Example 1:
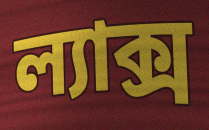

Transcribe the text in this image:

ল্যাক্স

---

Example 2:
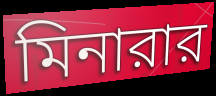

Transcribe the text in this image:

মিনারার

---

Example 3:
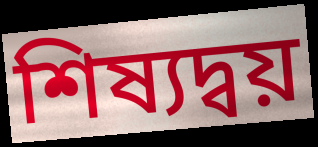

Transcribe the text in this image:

শিষ্যদ্বয়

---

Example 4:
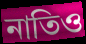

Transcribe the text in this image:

নাতিও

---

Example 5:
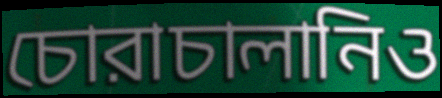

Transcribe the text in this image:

চোরাচালানিও